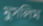
মুসলিম